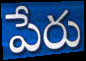
పేరు